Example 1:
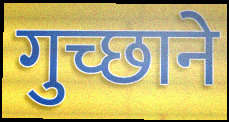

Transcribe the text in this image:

गुच्छाने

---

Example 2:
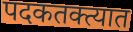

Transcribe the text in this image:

पदकतक्त्यात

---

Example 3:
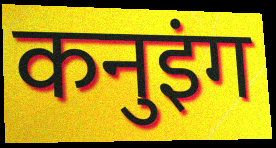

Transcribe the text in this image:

कनुइंग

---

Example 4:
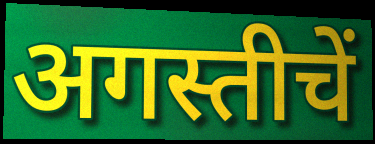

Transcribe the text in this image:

अगस्तीचें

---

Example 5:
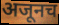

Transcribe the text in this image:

अजूनच